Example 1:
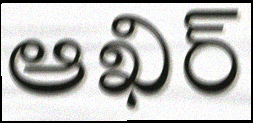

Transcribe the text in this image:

ఆఖిర్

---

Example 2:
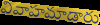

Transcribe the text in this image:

వివాహమాడారు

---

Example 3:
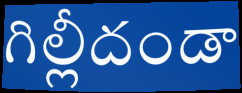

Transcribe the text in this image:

గిల్లీదండా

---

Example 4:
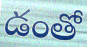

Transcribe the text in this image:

డంతో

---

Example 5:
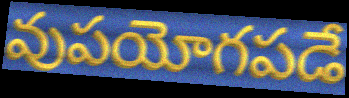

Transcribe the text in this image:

వుపయోగపడే